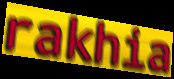
rakhia